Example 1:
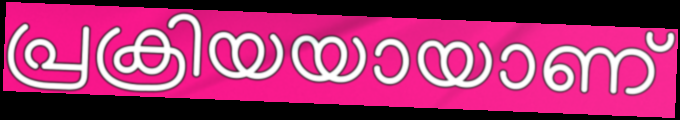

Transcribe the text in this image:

പ്രക്രിയയായാണ്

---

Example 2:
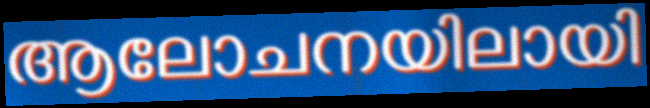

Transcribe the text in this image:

ആലോചനയിലായി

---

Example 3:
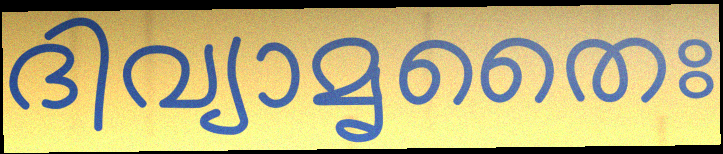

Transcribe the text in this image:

ദിവ്യാമൃതൈഃ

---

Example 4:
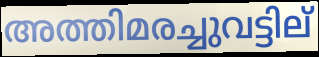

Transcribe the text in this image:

അത്തിമരച്ചുവട്ടില്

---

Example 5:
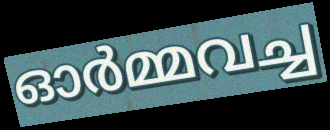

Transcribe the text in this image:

ഓർമ്മവച്ച